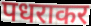
पधराकर